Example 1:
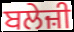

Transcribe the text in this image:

ਬਲੇਜ਼ੀ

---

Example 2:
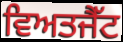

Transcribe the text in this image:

ਵਿਅਤਜੈੱਟ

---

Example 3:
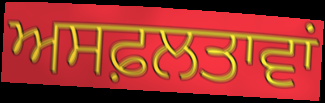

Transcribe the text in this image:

ਅਸਫ਼ਲਤਾਵਾਂ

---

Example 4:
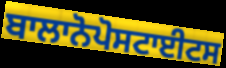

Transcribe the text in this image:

ਬਾਲਾਨੋਪੋਸਟਾਈਟਸ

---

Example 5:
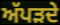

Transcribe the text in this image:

ਅੱਪੜਦੇ